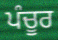
ਪੰਚੂਰ